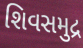
શિવસમુદ્ર